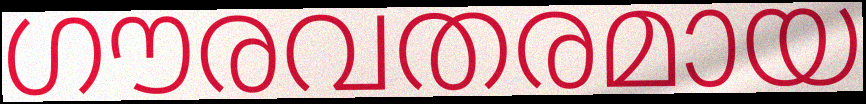
ഗൗരവതരമായ